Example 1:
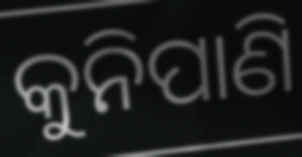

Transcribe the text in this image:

କୁନିପାଣି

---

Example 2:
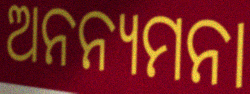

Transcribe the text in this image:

ଅନନ୍ୟମନା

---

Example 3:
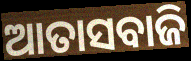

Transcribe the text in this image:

ଆତାସବାଜି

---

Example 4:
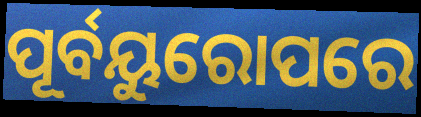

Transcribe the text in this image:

ପୂର୍ବୟୁରୋପରେ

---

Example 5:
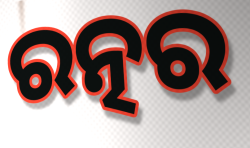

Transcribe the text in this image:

ରତ୍ନର